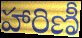
హారిణీ